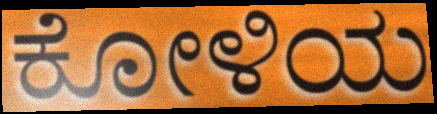
ಕೋಳಿಯ